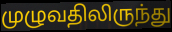
முழுவதிலிருந்து